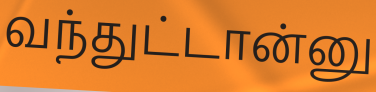
வந்துட்டான்னு